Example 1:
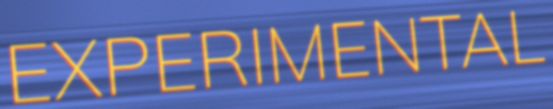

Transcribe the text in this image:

EXPERIMENTAL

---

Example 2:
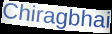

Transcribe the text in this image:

Chiragbhai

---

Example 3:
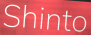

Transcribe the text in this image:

Shinto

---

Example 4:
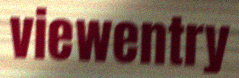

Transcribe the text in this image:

viewentry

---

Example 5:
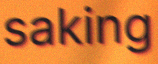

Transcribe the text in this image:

saking